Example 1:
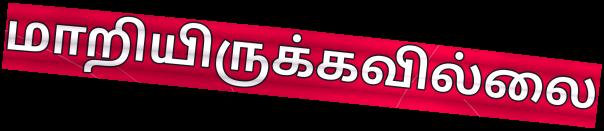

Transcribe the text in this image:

மாறியிருக்கவில்லை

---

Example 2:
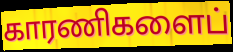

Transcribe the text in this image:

காரணிகளைப்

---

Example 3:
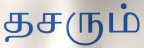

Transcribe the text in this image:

தசரும்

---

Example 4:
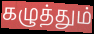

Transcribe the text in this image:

கழுத்தும்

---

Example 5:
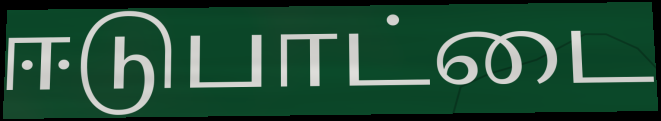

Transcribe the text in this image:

ஈடுபாட்டை